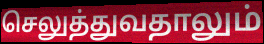
செலுத்துவதாலும்